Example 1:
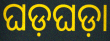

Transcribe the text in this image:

ଘଡ଼ଘଡ଼ା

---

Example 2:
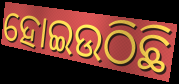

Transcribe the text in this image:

ହୋଇଉଠିଛି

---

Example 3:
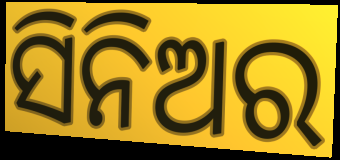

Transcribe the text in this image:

ସିନିଅର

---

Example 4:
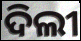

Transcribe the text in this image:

ଦିଲୀ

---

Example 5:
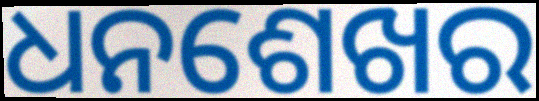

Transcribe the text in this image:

ଧନଶେଖର